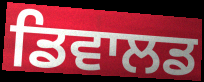
ਡਿਵਾਲਡ